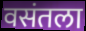
वसंतला